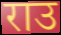
राउ